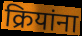
क्रियांना